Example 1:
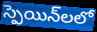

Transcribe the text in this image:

స్పెయిన్‌లలో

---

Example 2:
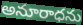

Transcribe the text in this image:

అనూరాధను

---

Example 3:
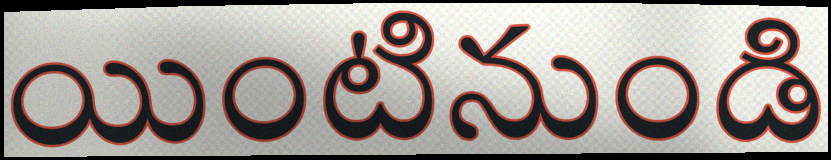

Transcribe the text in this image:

యింటినుండి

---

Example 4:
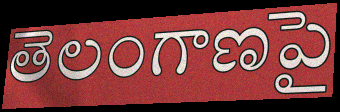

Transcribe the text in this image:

తెలంగాణపై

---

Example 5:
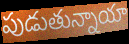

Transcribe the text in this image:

పుడుతున్నాయా